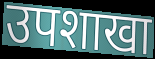
उपशाखा